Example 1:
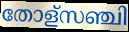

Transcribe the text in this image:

തോള്സഞ്ചി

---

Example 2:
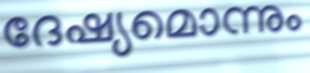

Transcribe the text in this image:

ദേഷ്യമൊന്നും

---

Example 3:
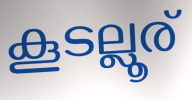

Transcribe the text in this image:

കൂടല്ലൂര്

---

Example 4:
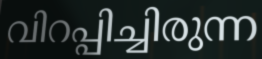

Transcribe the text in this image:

വിറപ്പിച്ചിരുന്ന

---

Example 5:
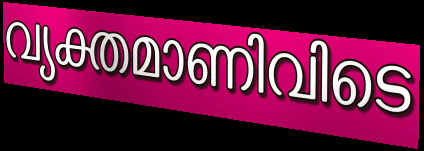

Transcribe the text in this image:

വ്യക്തമാണിവിടെ